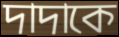
দাদাকে